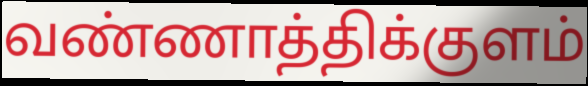
வண்ணாத்திக்குளம்